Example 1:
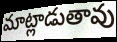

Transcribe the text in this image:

మాట్లాడుతావు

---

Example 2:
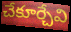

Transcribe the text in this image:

చేకూర్చేవి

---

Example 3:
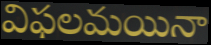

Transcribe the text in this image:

విఫలమయినా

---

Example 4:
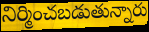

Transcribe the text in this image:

నిర్మించబడుతున్నారు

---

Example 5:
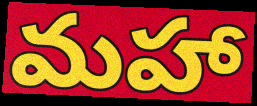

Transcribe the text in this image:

మహా